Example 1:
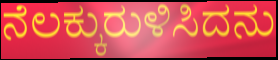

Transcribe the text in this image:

ನೆಲಕ್ಕುರುಳಿಸಿದನು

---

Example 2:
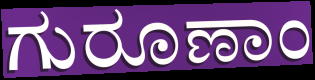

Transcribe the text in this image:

ಗುರೂಣಾಂ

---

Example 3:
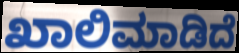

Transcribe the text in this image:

ಖಾಲಿಮಾಡಿದೆ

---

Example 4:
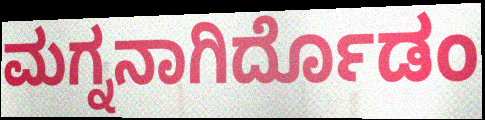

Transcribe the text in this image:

ಮಗ್ನನಾಗಿರ್ದೊಡಂ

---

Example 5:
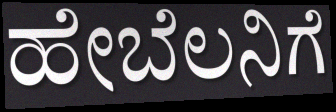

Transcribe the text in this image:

ಹೇಬೆಲನಿಗೆ